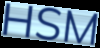
HSM